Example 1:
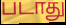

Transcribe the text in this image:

படாது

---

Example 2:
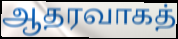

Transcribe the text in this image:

ஆதரவாகத்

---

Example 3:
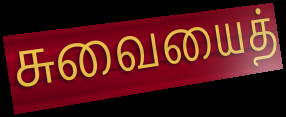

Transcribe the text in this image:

சுவையைத்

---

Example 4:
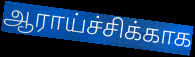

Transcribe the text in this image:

ஆராய்ச்சிக்காக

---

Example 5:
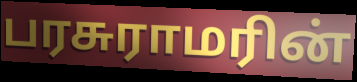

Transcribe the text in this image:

பரசுராமரின்